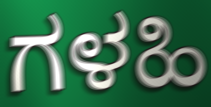
ಗಳಹಿ